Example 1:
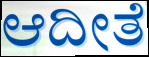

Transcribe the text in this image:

ಆದೀತೆ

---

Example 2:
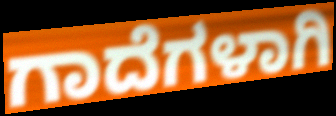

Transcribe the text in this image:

ಗಾದೆಗಳಾಗಿ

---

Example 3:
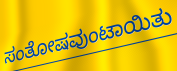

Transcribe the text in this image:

ಸಂತೋಷವುಂಟಾಯಿತು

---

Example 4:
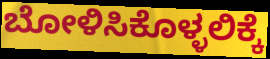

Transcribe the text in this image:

ಬೋಳಿಸಿಕೊಳ್ಳಲಿಕ್ಕೆ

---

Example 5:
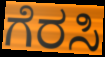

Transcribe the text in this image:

ಗೆರಸಿ